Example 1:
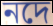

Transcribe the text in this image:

নদে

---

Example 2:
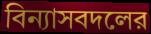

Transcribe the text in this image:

বিন্যাসবদলের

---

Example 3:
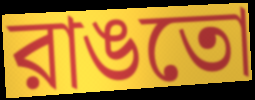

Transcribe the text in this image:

রাঙতো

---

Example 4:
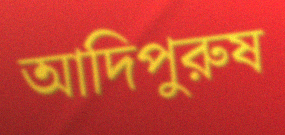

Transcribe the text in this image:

আদিপুরুষ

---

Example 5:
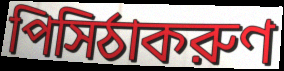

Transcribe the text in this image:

পিসিঠাকরুণ